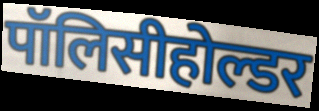
पॉलिसीहोल्डर